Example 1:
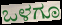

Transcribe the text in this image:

ಒಳಗೂ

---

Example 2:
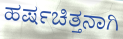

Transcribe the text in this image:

ಹರ್ಷಚಿತ್ತನಾಗಿ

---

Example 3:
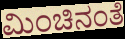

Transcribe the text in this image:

ಮಿಂಚಿನಂತೆ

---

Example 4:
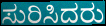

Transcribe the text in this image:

ಸುರಿಸಿದರು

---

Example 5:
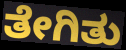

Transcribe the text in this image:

ತೇಗಿತು